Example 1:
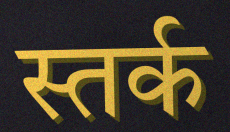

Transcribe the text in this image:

स्तर्क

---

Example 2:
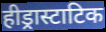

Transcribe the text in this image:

हीड्रास्टाटिक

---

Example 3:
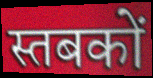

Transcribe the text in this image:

स्तबकों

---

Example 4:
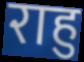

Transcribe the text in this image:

राहु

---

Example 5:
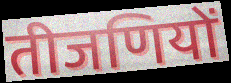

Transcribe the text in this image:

तीजणियों